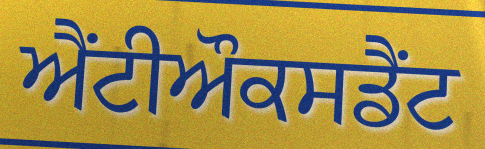
ਐਂਟੀਔਕਸਡੈਂਟ